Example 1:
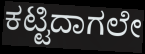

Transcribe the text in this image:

ಕಟ್ಟಿದಾಗಲೇ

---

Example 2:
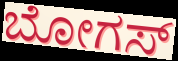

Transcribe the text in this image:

ಬೋಗಸ್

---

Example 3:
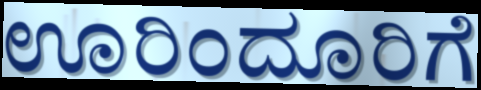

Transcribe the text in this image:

ಊರಿಂದೂರಿಗೆ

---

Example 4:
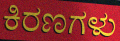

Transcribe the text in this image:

ಕಿರಣಗಳು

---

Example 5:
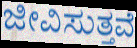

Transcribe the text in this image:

ಜೀವಿಸುತ್ತವೆ